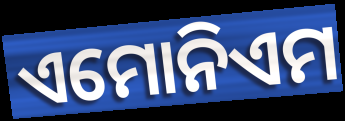
ଏମୋନିଏମ